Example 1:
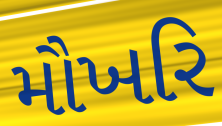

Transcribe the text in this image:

મૌખરિ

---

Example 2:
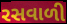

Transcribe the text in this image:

રસવાળી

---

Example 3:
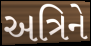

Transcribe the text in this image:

અત્રિને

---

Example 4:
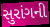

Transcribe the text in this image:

સુરાંગની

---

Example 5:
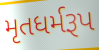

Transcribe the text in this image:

મૃતધર્મરૂપ